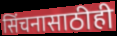
सिंचनासाठीही